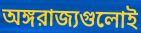
অঙ্গরাজ্যগুলোই